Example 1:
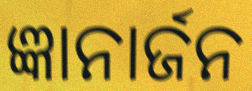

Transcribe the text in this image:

ଜ୍ଞାନାର୍ଜନ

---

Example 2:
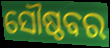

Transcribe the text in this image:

ସୌଷ୍ଠବର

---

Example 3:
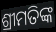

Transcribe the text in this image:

ଶ୍ରୀମତିଙ୍କ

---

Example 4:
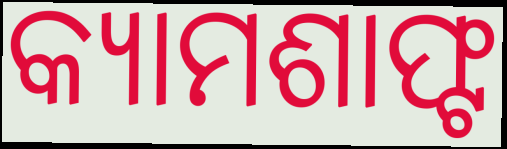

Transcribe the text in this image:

କ୍ୟାମଶାଫ୍ଟ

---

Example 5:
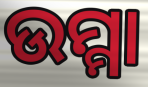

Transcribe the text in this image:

ଉମ୍ମା